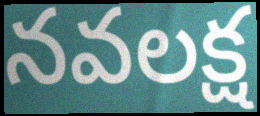
నవలక్ష